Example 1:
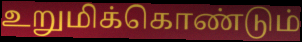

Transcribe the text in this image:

உறுமிக்கொண்டும்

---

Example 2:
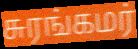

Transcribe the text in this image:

சுரங்கமர்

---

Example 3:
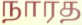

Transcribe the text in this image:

நாரத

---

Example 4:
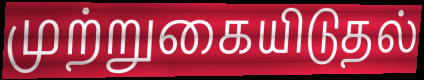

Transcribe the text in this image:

முற்றுகையிடுதல்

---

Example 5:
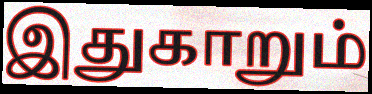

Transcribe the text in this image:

இதுகாறும்